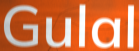
Gulal